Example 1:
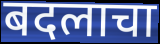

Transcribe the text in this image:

बदलाचा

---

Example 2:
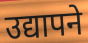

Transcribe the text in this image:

उद्यापने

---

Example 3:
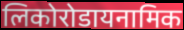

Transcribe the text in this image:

लिकोरोडायनामिक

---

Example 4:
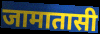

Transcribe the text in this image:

जामातासी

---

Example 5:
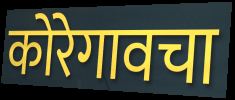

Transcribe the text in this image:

कोरेगावचा